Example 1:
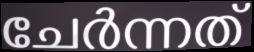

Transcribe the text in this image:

ചേർന്നത്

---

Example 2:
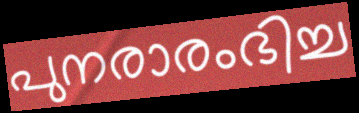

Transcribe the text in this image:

പുനരാരംഭിച്ച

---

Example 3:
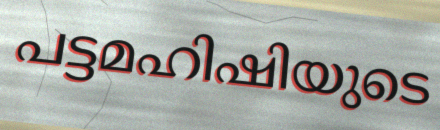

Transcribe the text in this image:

പട്ടമഹിഷിയുടെ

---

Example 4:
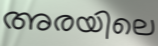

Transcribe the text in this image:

അരയിലെ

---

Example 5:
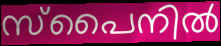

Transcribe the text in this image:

സ്പൈനിൽ